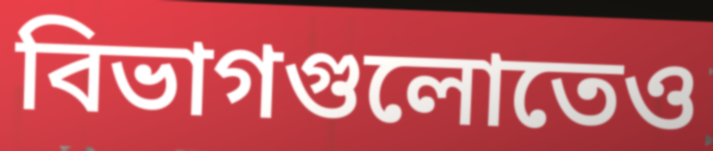
বিভাগগুলোতেও